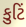
કુટિં